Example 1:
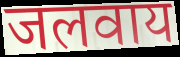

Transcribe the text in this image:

जलवाय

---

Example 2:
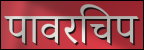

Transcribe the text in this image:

पावरचिप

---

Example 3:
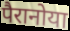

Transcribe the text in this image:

पैरानोया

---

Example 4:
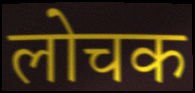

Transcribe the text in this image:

लोचक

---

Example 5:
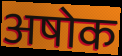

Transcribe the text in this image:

अषोक